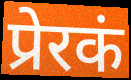
प्रेरकं